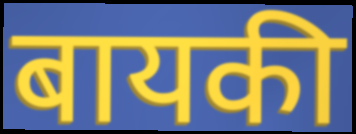
बायकी